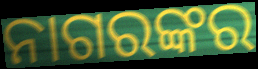
ନାଗରଙ୍କର